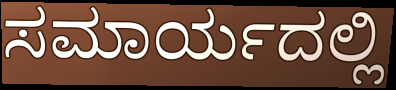
ಸಮಾರ್ಯದಲ್ಲಿ